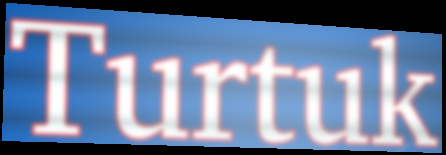
Turtuk